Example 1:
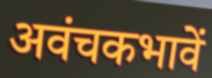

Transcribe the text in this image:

अवंचकभावें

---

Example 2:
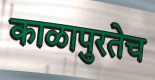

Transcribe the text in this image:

काळापुरतेच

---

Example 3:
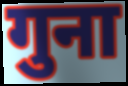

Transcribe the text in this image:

गुना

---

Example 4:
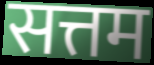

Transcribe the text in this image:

सत्तम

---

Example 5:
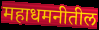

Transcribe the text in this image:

महाधमनीतील